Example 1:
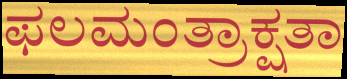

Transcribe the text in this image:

ಫಲಮಂತ್ರಾಕ್ಷತಾ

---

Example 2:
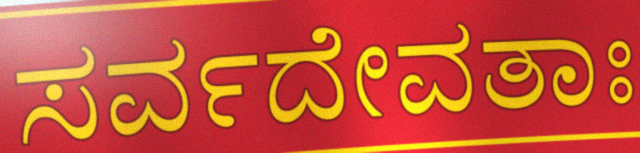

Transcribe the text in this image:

ಸರ್ವದೇವತಾಃ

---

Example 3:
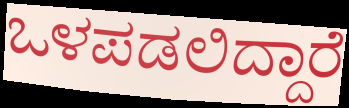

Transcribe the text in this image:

ಒಳಪಡಲಿದ್ದಾರೆ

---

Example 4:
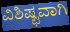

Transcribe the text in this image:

ವಿಶಿಷ್ಟವಾಗಿ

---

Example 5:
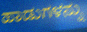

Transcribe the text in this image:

ಹಾಡುಗಳನ್ನು